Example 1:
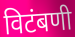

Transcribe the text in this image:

विटंबणी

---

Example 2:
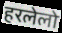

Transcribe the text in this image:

हरलेलो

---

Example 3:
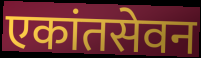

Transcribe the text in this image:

एकांतसेवन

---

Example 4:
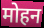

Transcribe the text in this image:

मोहन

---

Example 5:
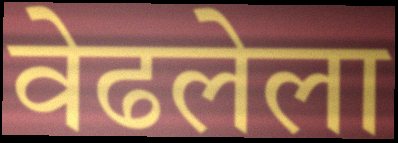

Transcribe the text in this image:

वेढलेला